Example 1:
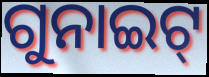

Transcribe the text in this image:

ଗୁନାଇଟ୍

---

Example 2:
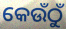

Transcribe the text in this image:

କେଉଁଠୁଁ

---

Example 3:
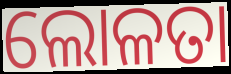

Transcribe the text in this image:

ଲୋଳତା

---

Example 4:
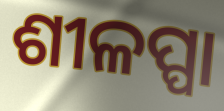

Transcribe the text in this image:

ଶୀଳପ୍ପା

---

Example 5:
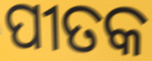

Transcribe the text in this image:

ପୀତକ